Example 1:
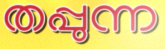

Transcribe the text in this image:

തപ്പുന്ന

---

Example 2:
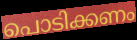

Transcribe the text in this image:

പൊടിക്കണം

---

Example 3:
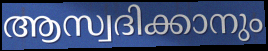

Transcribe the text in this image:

ആസ്വദിക്കാനും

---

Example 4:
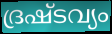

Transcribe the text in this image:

ദ്രഷ്ടവ്യം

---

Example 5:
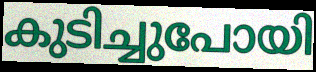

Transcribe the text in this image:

കുടിച്ചുപോയി